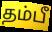
தம்பீ